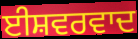
ਈਸ਼ਵਰਵਾਦ